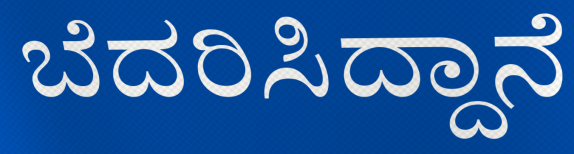
ಬೆದರಿಸಿದ್ದಾನೆ